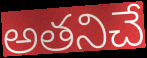
అతనిచే